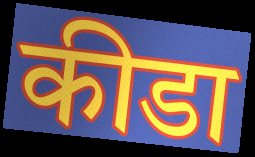
कीडा